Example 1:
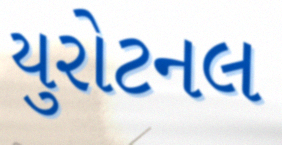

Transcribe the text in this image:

યુરોટનલ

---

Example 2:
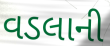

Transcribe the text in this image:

વડલાની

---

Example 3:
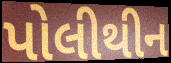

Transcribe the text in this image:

પોલીથીન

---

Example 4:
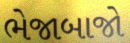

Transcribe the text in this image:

ભેજાબાજો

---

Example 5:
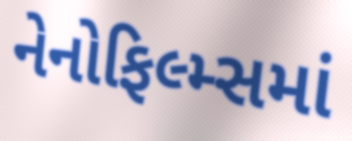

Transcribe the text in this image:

નેનોફિલ્મ્સમાં